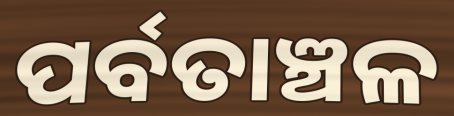
ପର୍ବତାଞ୍ଚଳ